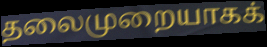
தலைமுறையாகக்